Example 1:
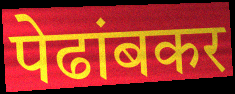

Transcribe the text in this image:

पेढांबकर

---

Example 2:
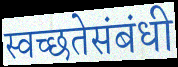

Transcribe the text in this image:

स्वच्छतेसंबंधी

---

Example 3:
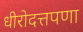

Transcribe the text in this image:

धीरोदत्तपणा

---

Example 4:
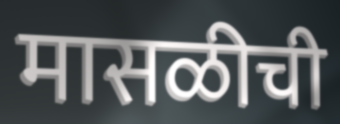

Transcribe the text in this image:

मासळीची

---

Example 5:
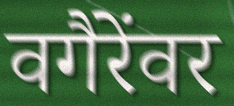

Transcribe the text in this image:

वगैरेंवर